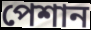
পেশান